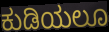
ಕುಡಿಯಲೂ